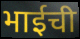
भाईची